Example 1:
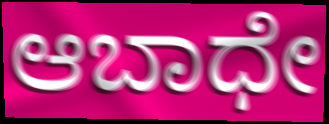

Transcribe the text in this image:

ಆಬಾಧೇ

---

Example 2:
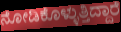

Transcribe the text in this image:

ನೋಡಿಕೊಳ್ಳುತ್ತಿದ್ದಾರೆ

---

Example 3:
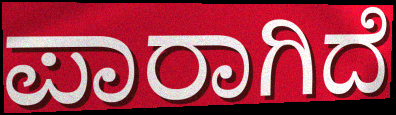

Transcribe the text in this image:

ಪಾರಾಗಿದೆ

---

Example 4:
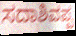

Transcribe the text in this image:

ಸದಾಶಿವಪ್ಪ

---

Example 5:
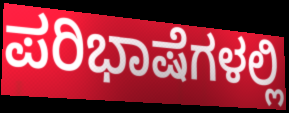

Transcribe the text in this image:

ಪರಿಭಾಷೆಗಳಲ್ಲಿ